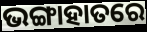
ଭଙ୍ଗାହାତରେ